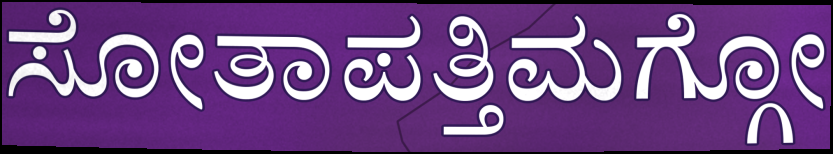
ಸೋತಾಪತ್ತಿಮಗ್ಗೋ